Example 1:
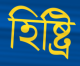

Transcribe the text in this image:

হিষ্ট্রি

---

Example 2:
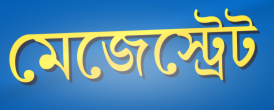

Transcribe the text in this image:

মেজেস্ট্রেট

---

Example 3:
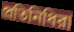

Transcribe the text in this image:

প্রতিনিধিরা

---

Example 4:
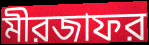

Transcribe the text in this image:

মীরজাফর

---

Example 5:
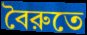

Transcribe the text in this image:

বৈরুতে